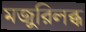
মজুরিলব্ধ